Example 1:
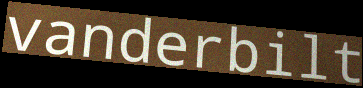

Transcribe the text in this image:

vanderbilt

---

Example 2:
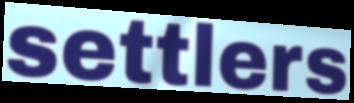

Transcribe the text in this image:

settlers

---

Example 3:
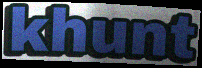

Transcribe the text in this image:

khunt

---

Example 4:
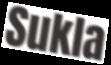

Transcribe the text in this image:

Sukla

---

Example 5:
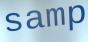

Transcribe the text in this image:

samp